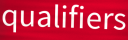
qualifiers